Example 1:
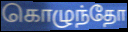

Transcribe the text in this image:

கொழுந்தோ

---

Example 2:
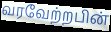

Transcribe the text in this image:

வரவேற்றபின்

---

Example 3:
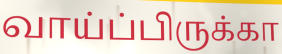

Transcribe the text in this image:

வாய்ப்பிருக்கா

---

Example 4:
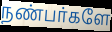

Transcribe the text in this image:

நண்பர்களே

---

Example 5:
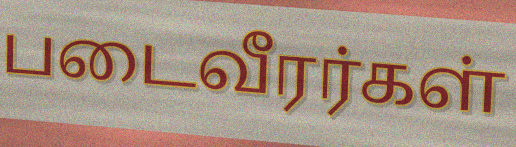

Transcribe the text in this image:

படைவீரர்கள்